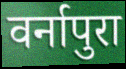
वर्नापुरा